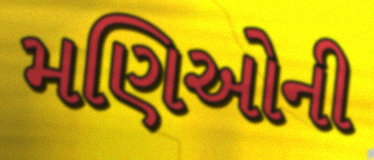
મણિઓની